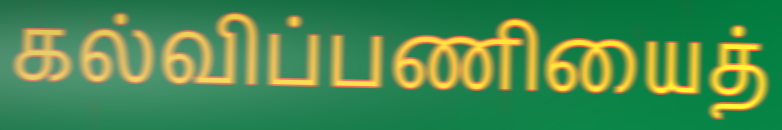
கல்விப்பணியைத்